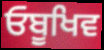
ਓਬੂਖਿਵ